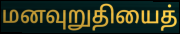
மனவுறுதியைத்